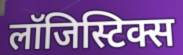
लॉजिस्टिक्स